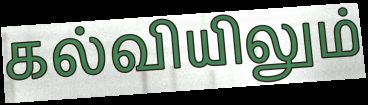
கல்வியிலும்